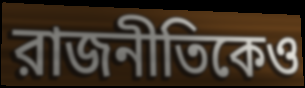
রাজনীতিকেও